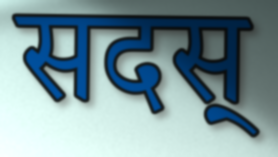
सदस्